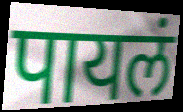
पायलं